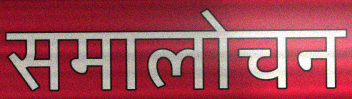
समालोचन